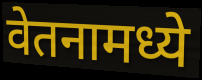
वेतनामध्ये